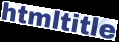
htmltitle